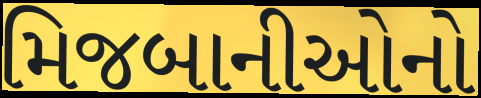
મિજબાનીઓનો